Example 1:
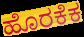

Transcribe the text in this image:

ಹೊರಕೆಕ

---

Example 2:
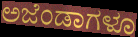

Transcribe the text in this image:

ಅಜೆಂಡಾಗಳೂ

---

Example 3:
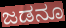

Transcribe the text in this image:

ಜಡನೂ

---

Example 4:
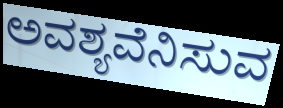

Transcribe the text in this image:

ಅವಶ್ಯವೆನಿಸುವ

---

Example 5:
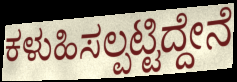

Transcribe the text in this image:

ಕಳುಹಿಸಲ್ಪಟ್ಟಿದ್ದೇನೆ